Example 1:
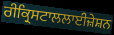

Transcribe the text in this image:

ਰੀਕ੍ਰਿਸਟਾਲਲਾਈਜ਼ੇਸ਼ਨ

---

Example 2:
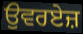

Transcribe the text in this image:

ਉਵਰਏਜ਼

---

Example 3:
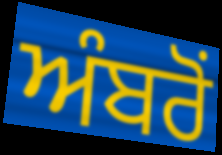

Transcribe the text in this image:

ਅੰਬਰੋਂ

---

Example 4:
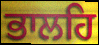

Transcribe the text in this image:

ਭਾਲਹਿ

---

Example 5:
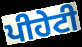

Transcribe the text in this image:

ਪੀਹੇਟੀ